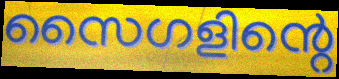
സൈഗളിന്റെ